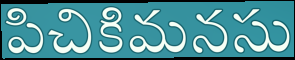
పిచికిమనసు